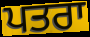
ਪਤਰਾ